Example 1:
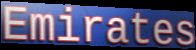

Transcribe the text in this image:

Emirates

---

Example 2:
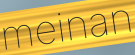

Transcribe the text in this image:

meinan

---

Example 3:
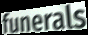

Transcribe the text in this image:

funerals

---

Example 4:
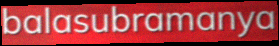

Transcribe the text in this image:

balasubramanya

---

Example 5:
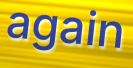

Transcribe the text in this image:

again